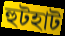
হুটহাট